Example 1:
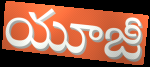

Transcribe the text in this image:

యూజీ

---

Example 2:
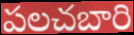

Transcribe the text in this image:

పలచబారి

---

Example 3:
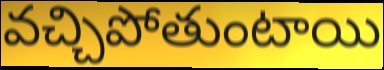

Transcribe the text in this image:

వచ్చిపోతుంటాయి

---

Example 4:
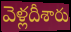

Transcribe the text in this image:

వెళ్లదీశారు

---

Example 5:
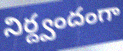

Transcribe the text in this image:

నిర్ద్వందంగా